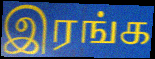
இரங்க